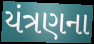
યંત્રણના